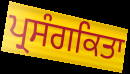
ਪ੍ਰਸੰਗਕਿਤਾ